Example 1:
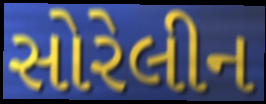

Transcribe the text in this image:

સોરેલીન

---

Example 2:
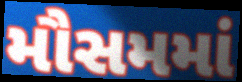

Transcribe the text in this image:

મૌસમમાં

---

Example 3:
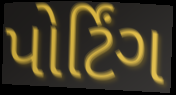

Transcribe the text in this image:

પોર્ટિંગ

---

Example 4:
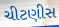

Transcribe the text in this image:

ચીટણીસ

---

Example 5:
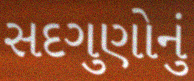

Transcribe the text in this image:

સદગુણોનું